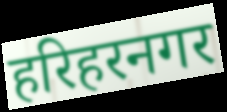
हरिहरनगर